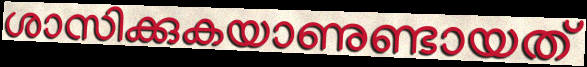
ശാസിക്കുകയാണുണ്ടായത്